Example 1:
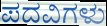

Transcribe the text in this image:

ಪದವಿಗಳು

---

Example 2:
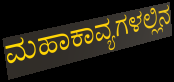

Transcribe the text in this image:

ಮಹಾಕಾವ್ಯಗಳಲ್ಲಿನ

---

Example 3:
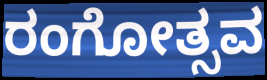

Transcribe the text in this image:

ರಂಗೋತ್ಸವ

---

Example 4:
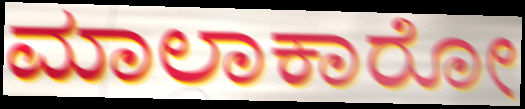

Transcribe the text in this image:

ಮಾಲಾಕಾರೋ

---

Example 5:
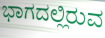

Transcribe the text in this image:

ಭಾಗದಲ್ಲಿರುವ